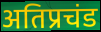
अतिप्रचंड